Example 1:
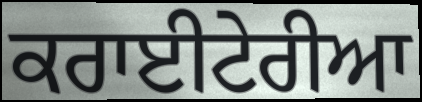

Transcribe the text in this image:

ਕਰਾਈਟੇਰੀਆ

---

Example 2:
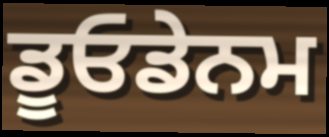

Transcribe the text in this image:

ਡੂਓਡੇਨਮ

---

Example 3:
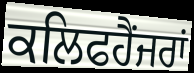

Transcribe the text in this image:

ਕਲਿਫਹੈਂਜਰਾਂ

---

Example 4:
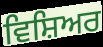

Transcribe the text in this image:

ਵਿਸ਼ਿਅਰ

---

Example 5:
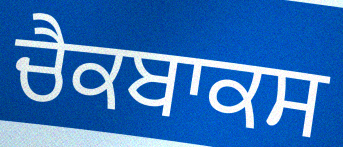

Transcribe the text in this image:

ਚੈਕਬਾਕਸ